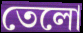
তেলো